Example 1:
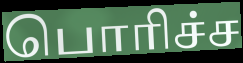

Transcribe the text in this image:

பொரிச்ச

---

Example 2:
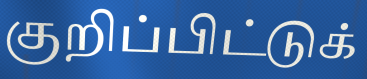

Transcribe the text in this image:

குறிப்பிட்டுக்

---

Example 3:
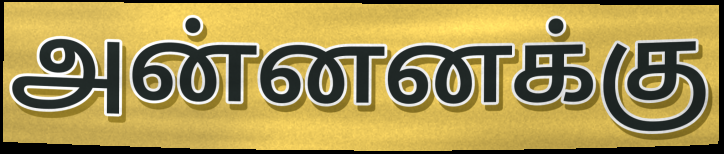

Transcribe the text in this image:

அன்னனக்கு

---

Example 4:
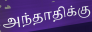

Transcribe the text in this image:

அந்தாதிக்கு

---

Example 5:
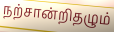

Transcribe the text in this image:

நற்சான்றிதழும்